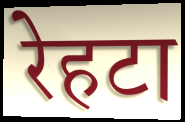
रेहटा